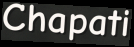
Chapati